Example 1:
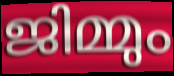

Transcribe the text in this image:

ജിമ്മും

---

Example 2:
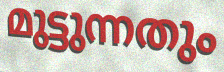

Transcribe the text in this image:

മുട്ടുന്നതും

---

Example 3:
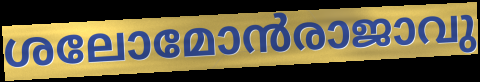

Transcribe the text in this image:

ശലോമോൻരാജാവു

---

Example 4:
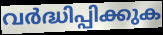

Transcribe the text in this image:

വർദ്ധിപ്പിക്കുക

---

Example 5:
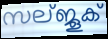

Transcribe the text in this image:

സല്ജൂക്